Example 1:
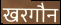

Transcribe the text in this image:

खरगौन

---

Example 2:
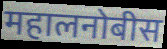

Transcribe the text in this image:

महालनोबीस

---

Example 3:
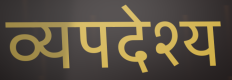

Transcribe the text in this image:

व्यपदेश्य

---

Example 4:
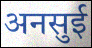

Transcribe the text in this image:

अनसुई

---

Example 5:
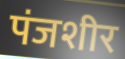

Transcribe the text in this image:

पंजशीर